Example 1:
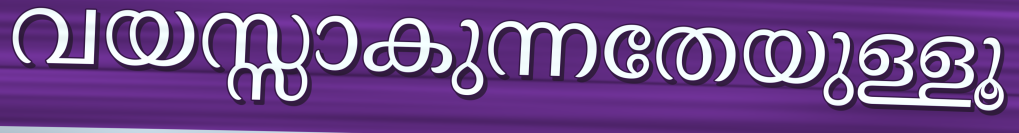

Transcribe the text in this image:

വയസ്സാകുന്നതേയുള്ളൂ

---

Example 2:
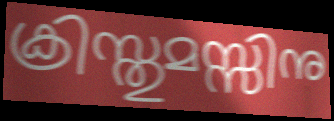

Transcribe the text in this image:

ക്രിസ്തുമസ്സിനു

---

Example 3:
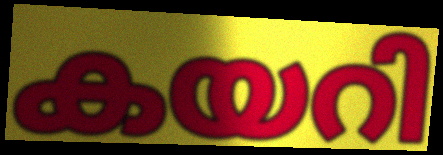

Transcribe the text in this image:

കയറി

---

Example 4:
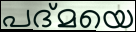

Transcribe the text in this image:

പദ്മയെ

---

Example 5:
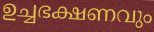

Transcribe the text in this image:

ഉച്ചഭക്ഷണവും